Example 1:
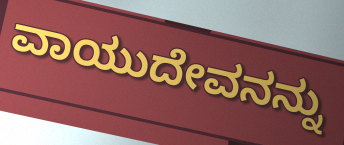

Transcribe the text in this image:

ವಾಯುದೇವನನ್ನು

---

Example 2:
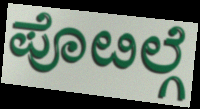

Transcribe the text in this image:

ಪೊೞಲ್ಗೆ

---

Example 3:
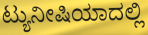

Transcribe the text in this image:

ಟ್ಯುನೀಷಿಯಾದಲ್ಲಿ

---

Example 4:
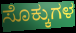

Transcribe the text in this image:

ಸೊಕ್ಕುಗಳ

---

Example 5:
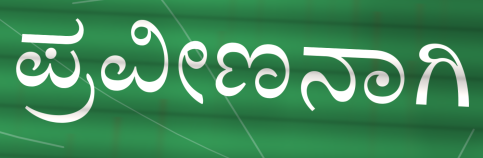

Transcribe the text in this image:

ಪ್ರವೀಣನಾಗಿ